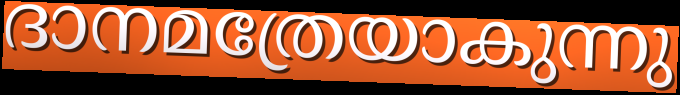
ദാനമത്രേയാകുന്നു